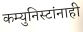
कम्युनिस्टांनाही